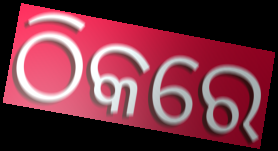
ଠିକରେ